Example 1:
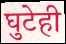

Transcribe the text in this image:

घुटेही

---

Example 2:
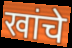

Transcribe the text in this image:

खांचे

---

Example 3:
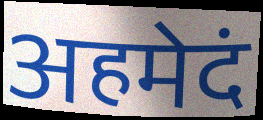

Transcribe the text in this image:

अहमेदं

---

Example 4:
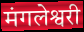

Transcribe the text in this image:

मंगलेश्वरी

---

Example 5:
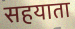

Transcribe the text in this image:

सहयाता